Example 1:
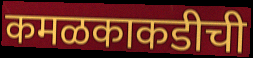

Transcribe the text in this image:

कमळकाकडीची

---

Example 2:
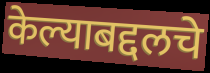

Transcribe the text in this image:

केल्याबद्दलचे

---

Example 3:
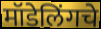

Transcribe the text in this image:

मॉडेलिंगचे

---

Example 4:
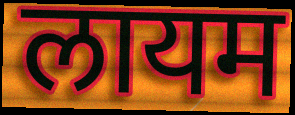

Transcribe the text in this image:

लायम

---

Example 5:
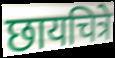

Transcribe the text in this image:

छायचित्रे